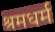
श्रमधर्म